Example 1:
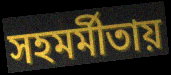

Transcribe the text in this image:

সহমর্মীতায়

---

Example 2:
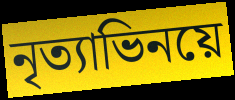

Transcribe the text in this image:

নৃত্যাভিনয়ে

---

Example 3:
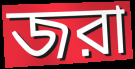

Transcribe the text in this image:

জরা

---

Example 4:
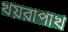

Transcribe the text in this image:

খয়রাপাখ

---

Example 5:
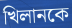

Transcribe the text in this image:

খিলানকে